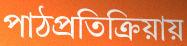
পাঠপ্রতিক্রিয়ায়